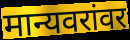
मान्यवरांवर